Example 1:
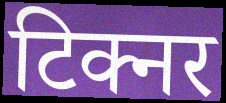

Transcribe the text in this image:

टिक्नर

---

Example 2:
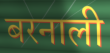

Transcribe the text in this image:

बरनाली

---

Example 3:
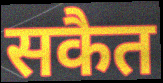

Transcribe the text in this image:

सकैत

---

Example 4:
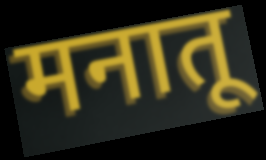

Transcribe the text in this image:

मनातू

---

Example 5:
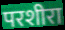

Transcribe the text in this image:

परशीरा